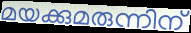
മയക്കുമരുന്നിന്